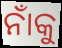
ନାଁକୁ